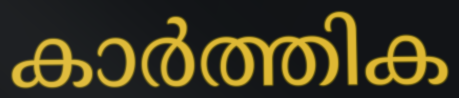
കാർത്തിക